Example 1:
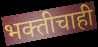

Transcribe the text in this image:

भक्तीचाही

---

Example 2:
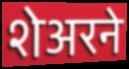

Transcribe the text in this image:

शेअरने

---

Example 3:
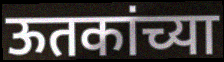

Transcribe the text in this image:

ऊतकांच्या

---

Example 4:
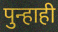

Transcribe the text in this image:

पुन्हाही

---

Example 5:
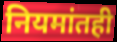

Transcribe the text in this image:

नियमांतही